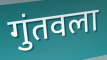
गुंतवला